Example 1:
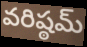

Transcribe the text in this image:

వరిష్ఠమ్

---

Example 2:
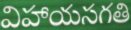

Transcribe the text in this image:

విహాయసగతి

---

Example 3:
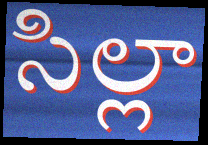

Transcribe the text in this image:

సిల్లా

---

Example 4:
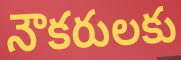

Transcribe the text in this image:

నౌకరులకు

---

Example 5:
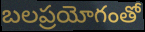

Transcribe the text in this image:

బలప్రయోగంతో